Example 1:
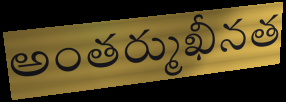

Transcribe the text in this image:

అంతర్ముఖీనత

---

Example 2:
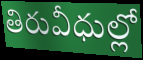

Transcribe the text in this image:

తిరువీధుల్లో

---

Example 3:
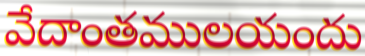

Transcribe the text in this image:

వేదాంతములయందు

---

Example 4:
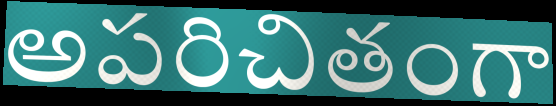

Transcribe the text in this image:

అపరిచితంగా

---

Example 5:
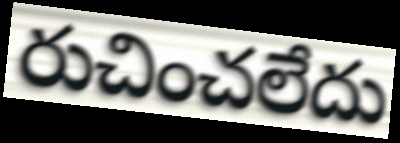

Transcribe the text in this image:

రుచించలేదు